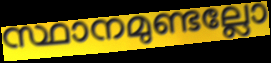
സ്ഥാനമുണ്ടല്ലോ